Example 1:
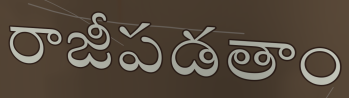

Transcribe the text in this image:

రాజీపడతాం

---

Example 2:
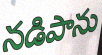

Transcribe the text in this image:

నడిపాను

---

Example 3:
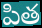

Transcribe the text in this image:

పిత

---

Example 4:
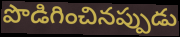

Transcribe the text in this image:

పొడిగించినప్పుడు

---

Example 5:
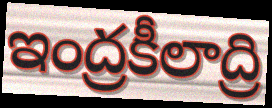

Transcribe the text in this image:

ఇంద్రకీలాద్రి